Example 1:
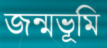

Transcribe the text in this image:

জন্মভূমি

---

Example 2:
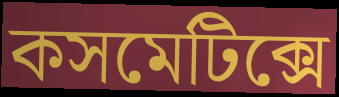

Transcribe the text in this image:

কসমেটিক্সে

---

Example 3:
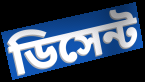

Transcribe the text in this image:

ডিসেন্ট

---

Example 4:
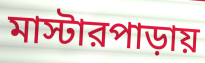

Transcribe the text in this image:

মাস্টারপাড়ায়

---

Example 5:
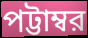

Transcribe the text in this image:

পট্টাম্বর